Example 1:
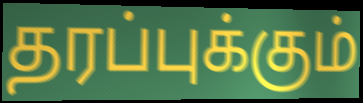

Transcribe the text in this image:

தரப்புக்கும்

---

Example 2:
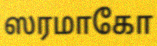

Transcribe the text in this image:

ஸரமாகோ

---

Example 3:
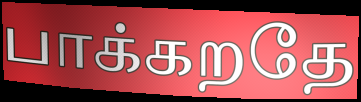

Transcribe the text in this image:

பாக்கறதே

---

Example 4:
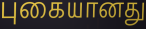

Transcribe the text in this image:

புகையானது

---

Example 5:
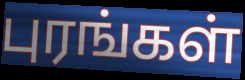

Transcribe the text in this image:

புரங்கள்